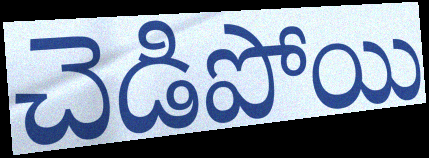
చెడిపోయి